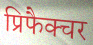
प्रिफैक्चर